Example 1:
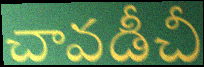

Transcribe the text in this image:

చావడీచీ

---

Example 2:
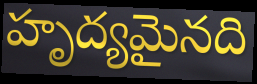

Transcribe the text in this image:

హృద్యమైనది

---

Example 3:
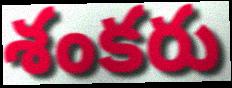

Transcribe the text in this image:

శంకరు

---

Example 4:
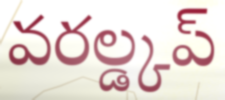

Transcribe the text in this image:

వరల్డ్కప్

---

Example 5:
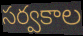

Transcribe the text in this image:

సర్వకాల